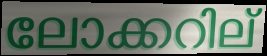
ലോക്കറില്